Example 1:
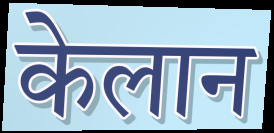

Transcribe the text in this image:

केलान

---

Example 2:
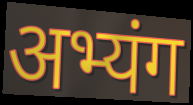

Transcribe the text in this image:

अभ्यंग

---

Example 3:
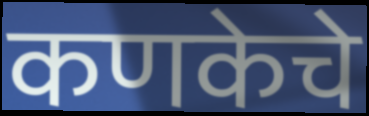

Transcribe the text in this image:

कणकेचे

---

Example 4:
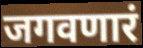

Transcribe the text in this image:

जगवणारं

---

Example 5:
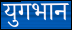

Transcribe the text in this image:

युगभान